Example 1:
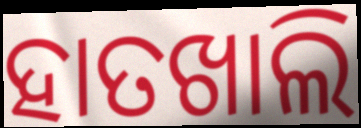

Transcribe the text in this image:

ହାତଖାଲି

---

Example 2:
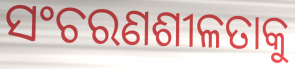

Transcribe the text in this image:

ସଂଚରଣଶୀଳତାକୁ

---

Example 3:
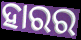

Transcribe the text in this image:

ହାରର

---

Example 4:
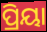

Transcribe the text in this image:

ପ୍ରିୟା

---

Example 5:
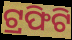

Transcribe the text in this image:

ଟ୍ରଫିଟି